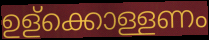
ഉള്ക്കൊള്ളണം